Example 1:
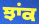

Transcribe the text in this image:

ਝਾਂਕ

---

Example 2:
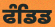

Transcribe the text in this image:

ਫੰਡਿਡ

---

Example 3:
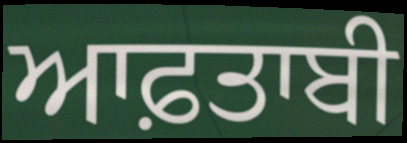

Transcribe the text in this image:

ਆਫ਼ਤਾਬੀ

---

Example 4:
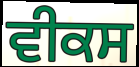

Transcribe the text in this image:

ਵੀਕਸ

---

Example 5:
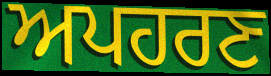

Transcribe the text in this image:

ਅਪਹਰਣ